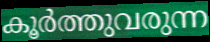
കൂർത്തുവരുന്ന